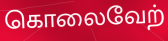
கொலைவேற்